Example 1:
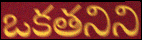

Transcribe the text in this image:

ఒకతనిని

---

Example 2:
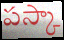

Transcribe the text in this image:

పస్కా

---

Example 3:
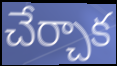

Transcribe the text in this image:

చేర్చాక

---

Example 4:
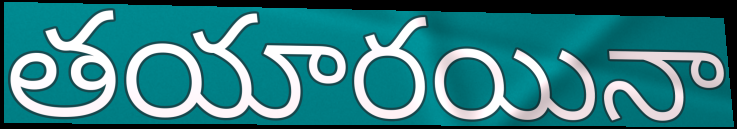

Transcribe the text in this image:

తయారయినా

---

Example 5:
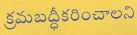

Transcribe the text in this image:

క్రమబద్ధీకరించాలని